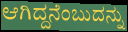
ಆಗಿದ್ದನೆಂಬುದನ್ನು